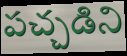
పచ్చడిని